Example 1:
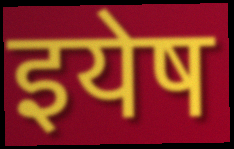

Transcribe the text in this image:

इयेष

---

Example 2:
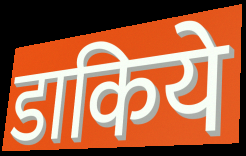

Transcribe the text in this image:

डाकिये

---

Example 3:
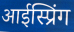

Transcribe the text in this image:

आईस्प्रिंग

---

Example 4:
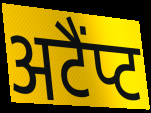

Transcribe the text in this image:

अटैंप्ट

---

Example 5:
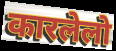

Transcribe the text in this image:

कारलेलो